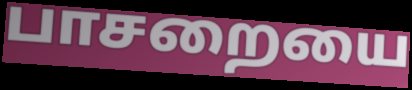
பாசறையை